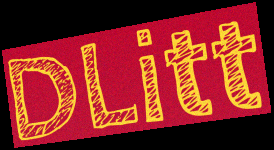
DLitt